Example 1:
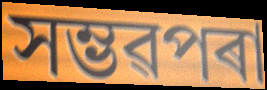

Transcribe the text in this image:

সম্ভৱপৰা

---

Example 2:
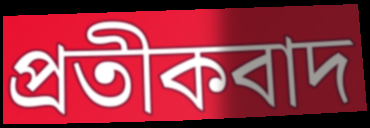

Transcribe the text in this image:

প্ৰতীকবাদ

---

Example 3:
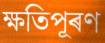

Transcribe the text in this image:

ক্ষতিপূৰণ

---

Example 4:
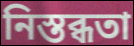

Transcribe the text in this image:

নিস্তব্ধতা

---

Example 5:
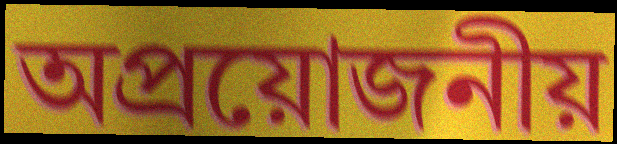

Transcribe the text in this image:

অপ্ৰয়োজনীয়